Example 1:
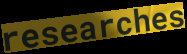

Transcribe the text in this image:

researches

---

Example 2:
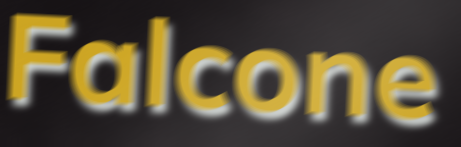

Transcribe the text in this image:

Falcone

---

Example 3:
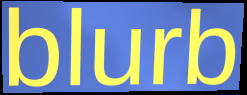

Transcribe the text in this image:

blurb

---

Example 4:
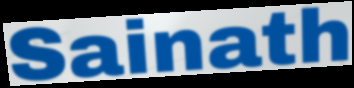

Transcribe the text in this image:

Sainath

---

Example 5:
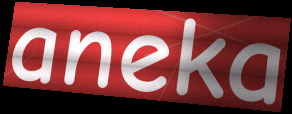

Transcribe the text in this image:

aneka